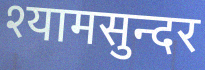
श्यामसुन्दर